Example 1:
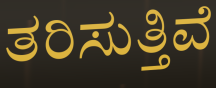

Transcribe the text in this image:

ತರಿಸುತ್ತಿವೆ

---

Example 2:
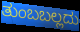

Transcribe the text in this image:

ತುಂಬಬಲ್ಲದು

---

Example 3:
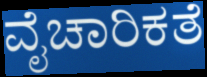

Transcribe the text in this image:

ವೈಚಾರಿಕತೆ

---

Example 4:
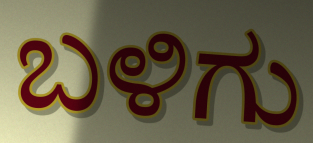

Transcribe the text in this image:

ಬಳಿಗು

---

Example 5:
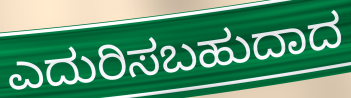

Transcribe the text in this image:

ಎದುರಿಸಬಹುದಾದ